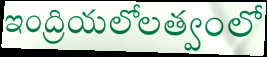
ఇంద్రియలోలత్వంలో